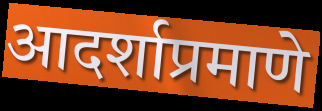
आदर्शाप्रमाणे